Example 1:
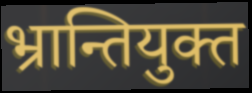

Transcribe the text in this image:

भ्रान्तियुक्त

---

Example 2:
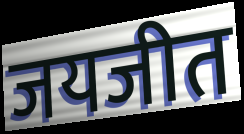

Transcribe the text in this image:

जयजीत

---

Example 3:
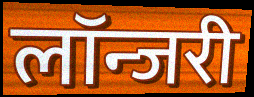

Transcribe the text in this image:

लॉन्जरी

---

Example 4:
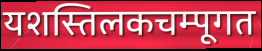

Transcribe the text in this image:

यशस्तिलकचम्पूगत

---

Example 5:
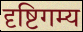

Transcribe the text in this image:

दृष्टिगम्य